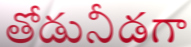
తోడునీడగా